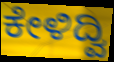
ಕೇಳಿದ್ವಿ